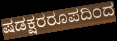
ಷಡಕ್ಷರರೂಪದಿಂದ